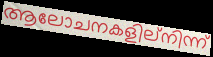
ആലോചനകളില്നിന്ന്